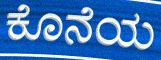
ಕೊನೆಯ